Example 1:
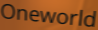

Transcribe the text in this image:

Oneworld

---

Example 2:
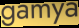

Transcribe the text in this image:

gamya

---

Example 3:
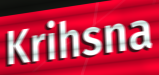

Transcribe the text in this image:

Krihsna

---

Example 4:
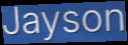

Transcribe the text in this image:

Jayson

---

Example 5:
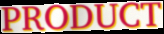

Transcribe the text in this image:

PRODUCT